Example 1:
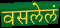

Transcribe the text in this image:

वसलेलं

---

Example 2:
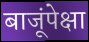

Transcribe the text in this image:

बाजूंपेक्षा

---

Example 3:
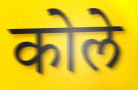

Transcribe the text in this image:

कोले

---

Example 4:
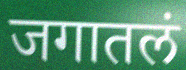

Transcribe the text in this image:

जगातलं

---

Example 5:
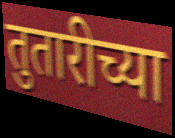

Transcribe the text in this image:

तुतारीच्या